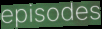
episodes